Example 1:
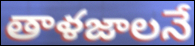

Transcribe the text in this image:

తాళజాలనే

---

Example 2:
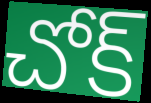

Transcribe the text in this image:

చోక్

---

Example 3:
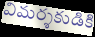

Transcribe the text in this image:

విమర్శకుడికి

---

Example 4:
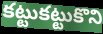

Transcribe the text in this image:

కట్టుకట్టుకొని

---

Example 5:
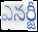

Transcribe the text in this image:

ఎనర్జీ